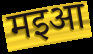
मइआ